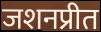
जशनप्रीत